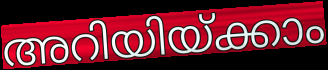
അറിയിയ്ക്കാം